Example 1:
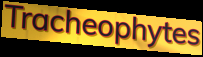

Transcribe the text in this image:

Tracheophytes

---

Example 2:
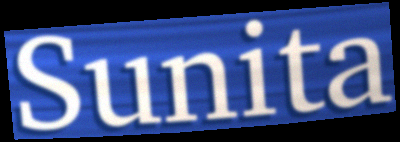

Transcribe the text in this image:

Sunita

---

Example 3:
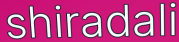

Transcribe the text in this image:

shiradali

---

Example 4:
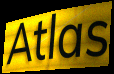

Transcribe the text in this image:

Atlas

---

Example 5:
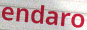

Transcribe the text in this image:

endaro